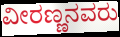
ವೀರಣ್ಣನವರು